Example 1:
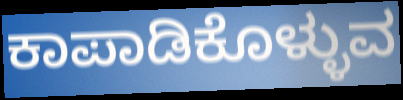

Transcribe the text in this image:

ಕಾಪಾಡಿಕೊಳ್ಳುವ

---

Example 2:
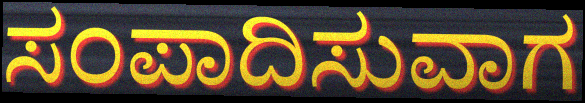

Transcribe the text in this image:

ಸಂಪಾದಿಸುವಾಗ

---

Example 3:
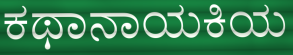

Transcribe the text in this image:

ಕಥಾನಾಯಕಿಯ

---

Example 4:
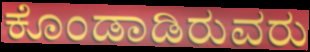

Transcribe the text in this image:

ಕೊಂಡಾಡಿರುವರು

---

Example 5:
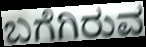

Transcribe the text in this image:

ಬಗೆಗಿರುವ